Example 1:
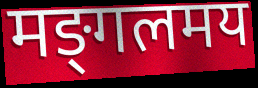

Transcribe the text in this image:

मङ्गलमय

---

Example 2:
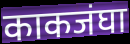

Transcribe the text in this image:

काकजंघा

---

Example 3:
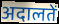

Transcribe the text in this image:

अदालतें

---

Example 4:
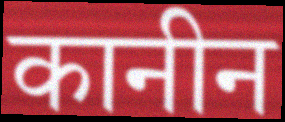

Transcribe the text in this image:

कानीन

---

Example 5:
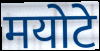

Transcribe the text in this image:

मयोटे